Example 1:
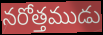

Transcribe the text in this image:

నరోత్తముడు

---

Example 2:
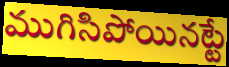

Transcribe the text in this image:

ముగిసిపోయినట్టే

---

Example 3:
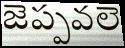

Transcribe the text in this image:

జెప్పవలె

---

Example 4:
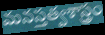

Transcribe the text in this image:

మనస్తత్వశాస్త్రం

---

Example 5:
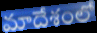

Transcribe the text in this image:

మాదేశంలో